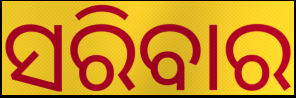
ସରିବାର